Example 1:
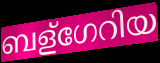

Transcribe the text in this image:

ബള്ഗേറിയ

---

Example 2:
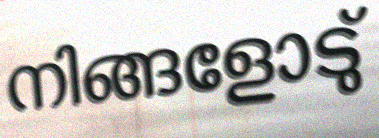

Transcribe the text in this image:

നിങ്ങളോടു്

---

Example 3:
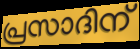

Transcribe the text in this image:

പ്രസാദിന്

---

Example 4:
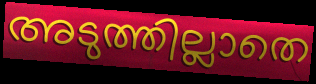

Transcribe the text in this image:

അടുത്തില്ലാതെ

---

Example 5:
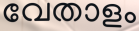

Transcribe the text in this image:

വേതാളം